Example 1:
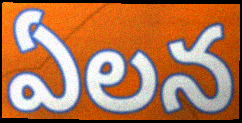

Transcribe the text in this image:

ఏలన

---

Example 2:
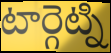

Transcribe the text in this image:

టార్గెట్ని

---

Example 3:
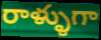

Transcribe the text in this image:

రాళ్ళుగా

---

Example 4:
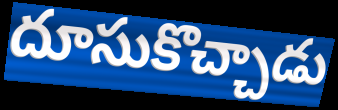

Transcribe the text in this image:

దూసుకొచ్చాడు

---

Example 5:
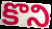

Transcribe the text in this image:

కొని